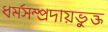
ধর্মসম্প্রদায়ভুক্ত